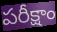
పరీక్షాం